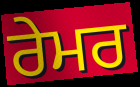
ਰੇਮਰ